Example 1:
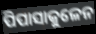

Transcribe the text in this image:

ପିପାସାକୁଳେନ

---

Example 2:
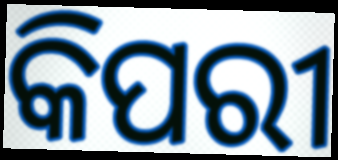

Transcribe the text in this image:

କିପରୀ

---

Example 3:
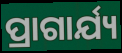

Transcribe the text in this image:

ପ୍ରାଗାର୍ଯ୍ୟ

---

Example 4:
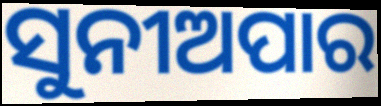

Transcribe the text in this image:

ସୁନୀଅପାର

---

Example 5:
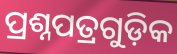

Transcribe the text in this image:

ପ୍ରଶ୍ନପତ୍ରଗୁଡ଼ିକ